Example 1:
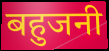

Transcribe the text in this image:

बहुजनी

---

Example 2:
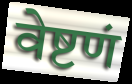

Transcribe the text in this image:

वेष्टणं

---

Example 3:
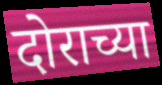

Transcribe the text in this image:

दोराच्या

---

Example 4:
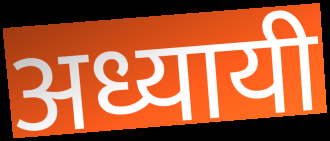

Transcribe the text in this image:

अध्यायी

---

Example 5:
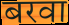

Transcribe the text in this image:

बरवा